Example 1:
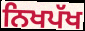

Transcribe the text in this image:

ਨਿਖਪੱਖ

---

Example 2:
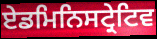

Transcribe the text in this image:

ਏਡਮਿਨਿਸਟ੍ਰੇਟਿਵ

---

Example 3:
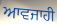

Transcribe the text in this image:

ਆਵਜਾਹੀ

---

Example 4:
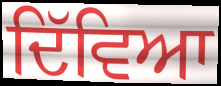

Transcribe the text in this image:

ਦਿੱਵਿਆ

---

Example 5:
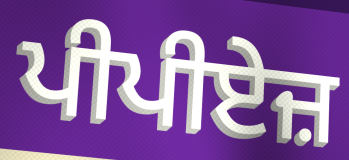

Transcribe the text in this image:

ਪੀਪੀਏਜ਼